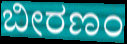
ಬೀರಣಂ